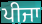
ਪੀਜਾ